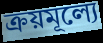
ক্রয়মূল্যে